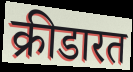
क्रीडारत